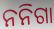
ନନିଗା